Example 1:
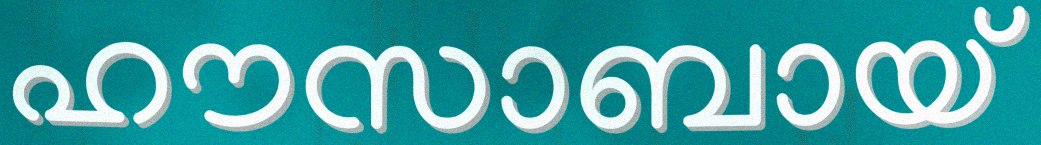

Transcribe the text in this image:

ഹൗസാബായ്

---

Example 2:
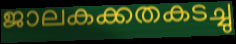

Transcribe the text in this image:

ജാലകക്കതകടച്ചു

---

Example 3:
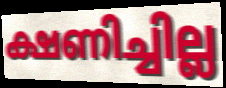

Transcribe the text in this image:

ക്ഷണിച്ചില്ല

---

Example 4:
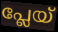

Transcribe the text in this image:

പ്ലേയ്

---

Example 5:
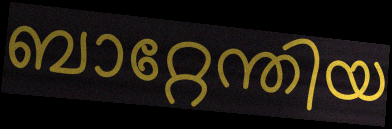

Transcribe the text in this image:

ബാറ്റേന്തിയ